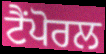
ਟੈਂਪੋਰਲ